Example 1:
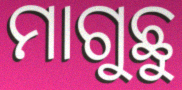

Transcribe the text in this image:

ମାଗୁଛୁ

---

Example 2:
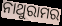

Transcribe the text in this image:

ନାଥୁରାମର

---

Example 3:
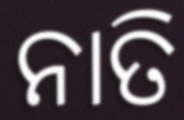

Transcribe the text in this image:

ନାତି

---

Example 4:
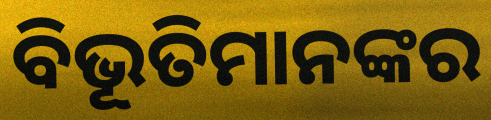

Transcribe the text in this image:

ବିଭୂତିମାନଙ୍କର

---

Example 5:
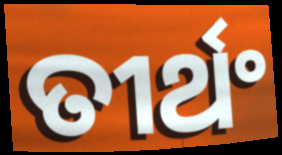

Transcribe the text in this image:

ତୀର୍ଥଂ